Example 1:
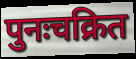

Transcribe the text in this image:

पुनःचक्रित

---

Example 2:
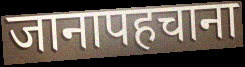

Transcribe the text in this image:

जानापहचाना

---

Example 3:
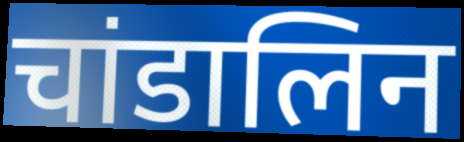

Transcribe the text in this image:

चांडालिन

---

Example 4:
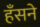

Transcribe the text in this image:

हँसने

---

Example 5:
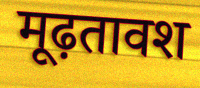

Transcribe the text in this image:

मूढ़तावश